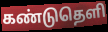
கண்டுதெளி